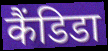
कैंडिडा